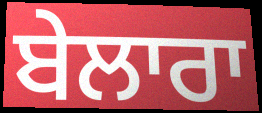
ਬੇਲਾਰਾ